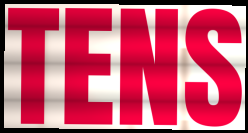
TENS